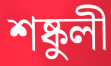
শষ্কুলী